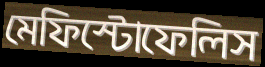
মেফিস্টোফেলিস